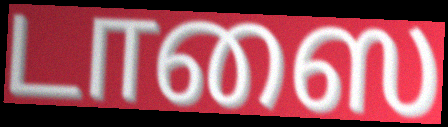
டாஸை